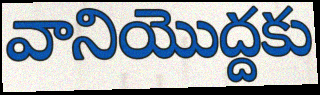
వానియొద్దకు